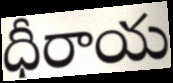
ధీరాయ